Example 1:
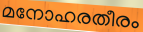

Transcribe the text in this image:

മനോഹരതീരം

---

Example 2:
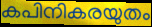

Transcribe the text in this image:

കപിനികരയുതം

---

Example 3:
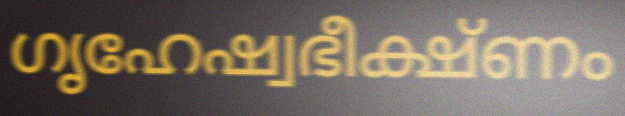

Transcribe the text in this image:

ഗൃഹേഷ്വഭീക്ഷ്ണം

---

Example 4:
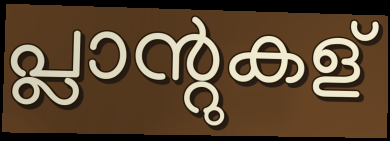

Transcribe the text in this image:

പ്ലാന്റുകള്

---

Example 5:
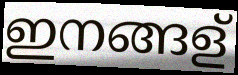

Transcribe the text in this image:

ഇനങ്ങള്